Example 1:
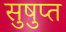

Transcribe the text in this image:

सुषुप्त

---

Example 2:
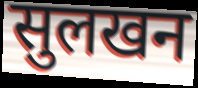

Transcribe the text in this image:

सुलखन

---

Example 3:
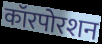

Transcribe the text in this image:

कॉरपोरशन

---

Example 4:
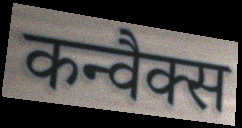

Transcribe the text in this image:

कन्वैक्स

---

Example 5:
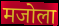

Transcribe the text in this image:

मजोला